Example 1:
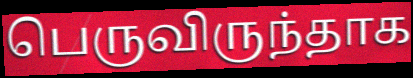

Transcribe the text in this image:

பெருவிருந்தாக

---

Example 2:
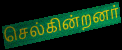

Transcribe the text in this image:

செல்கின்றனர்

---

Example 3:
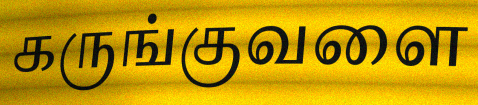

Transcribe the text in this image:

கருங்குவளை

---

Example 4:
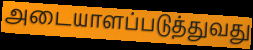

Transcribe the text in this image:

அடையாளப்படுத்துவது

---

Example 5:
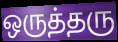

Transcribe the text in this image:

ஒருத்தரு